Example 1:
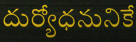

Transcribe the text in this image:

దుర్యోధనునికే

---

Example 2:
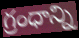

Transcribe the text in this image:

గ్రంధాన్ని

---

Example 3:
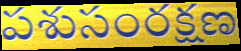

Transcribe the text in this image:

పశుసంరక్షణ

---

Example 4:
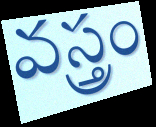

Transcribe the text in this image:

వస్త్రం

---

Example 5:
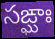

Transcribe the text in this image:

సఙ్ఘాః